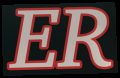
ER